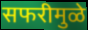
सफरीमुळे